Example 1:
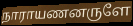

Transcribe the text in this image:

நாராயணனருளே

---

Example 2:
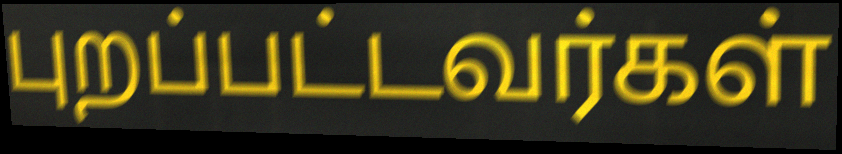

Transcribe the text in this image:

புறப்பட்டவர்கள்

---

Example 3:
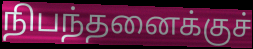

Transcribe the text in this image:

நிபந்தனைக்குச்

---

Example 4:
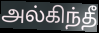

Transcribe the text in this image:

அல்கிந்தீ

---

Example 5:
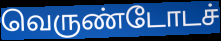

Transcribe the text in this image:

வெருண்டோடச்